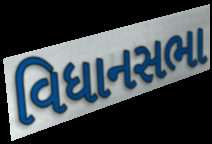
વિધાનસભા